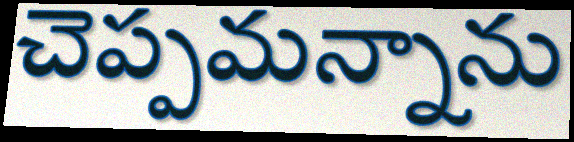
చెప్పమన్నాను